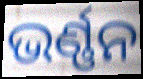
ଭର୍ଣ୍ଣନ